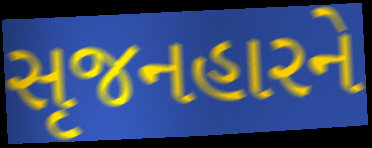
સૃજનહારને